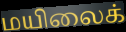
மயிலைக்